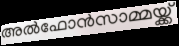
അൽഫോൻസാമ്മയ്ക്ക്